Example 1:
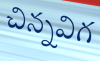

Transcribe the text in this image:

చిన్నవిగ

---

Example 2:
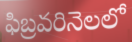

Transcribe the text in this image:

ఫిబ్రవరినెలలో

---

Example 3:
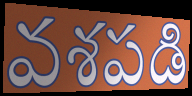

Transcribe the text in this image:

వశపడి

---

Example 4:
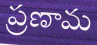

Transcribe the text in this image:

ప్రణామ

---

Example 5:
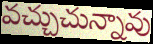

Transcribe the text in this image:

వచ్చుచున్నావు